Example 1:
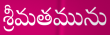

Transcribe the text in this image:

శ్రీమతమును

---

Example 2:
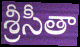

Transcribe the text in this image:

శ్రీసీతా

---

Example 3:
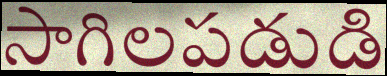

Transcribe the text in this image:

సాగిలపడుడి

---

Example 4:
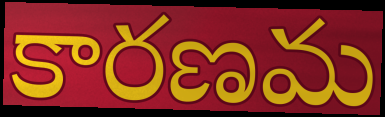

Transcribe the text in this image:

కారణమ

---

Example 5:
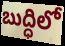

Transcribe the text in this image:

బుద్ధిలో